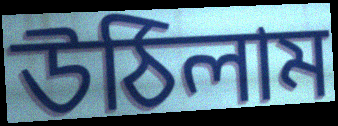
উঠিলাম